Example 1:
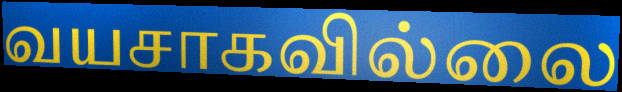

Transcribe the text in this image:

வயசாகவில்லை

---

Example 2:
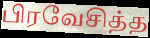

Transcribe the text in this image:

பிரவேசித்த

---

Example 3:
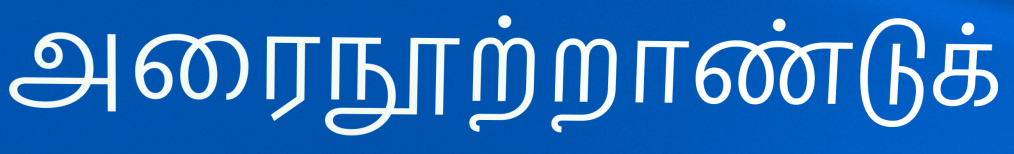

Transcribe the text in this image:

அரைநூற்றாண்டுக்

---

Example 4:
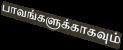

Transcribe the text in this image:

பாவங்களுக்காகவும்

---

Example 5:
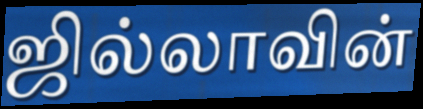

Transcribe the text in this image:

ஜில்லாவின்